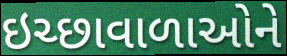
ઇચ્છાવાળાઓને